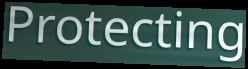
Protecting